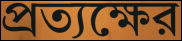
প্রত্যক্ষের